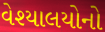
વેશ્યાલયોનો